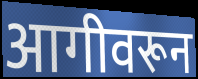
आगीवरून